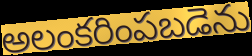
అలంకరింపబడెను